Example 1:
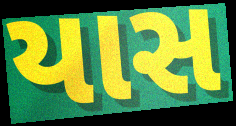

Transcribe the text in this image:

યાસ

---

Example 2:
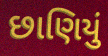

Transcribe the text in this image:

છાણિયું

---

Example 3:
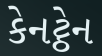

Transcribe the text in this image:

કેનટ્ઠેન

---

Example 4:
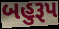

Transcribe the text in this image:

બહુરૂપ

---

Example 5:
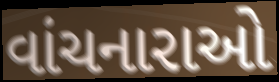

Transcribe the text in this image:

વાંચનારાઓ